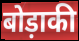
बोड़ाकी